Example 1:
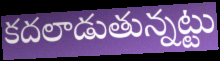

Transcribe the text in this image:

కదలాడుతున్నట్టు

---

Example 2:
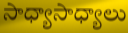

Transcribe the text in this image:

సాధ్యాసాధ్యాలు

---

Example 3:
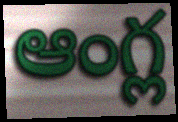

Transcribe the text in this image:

ఆంగ్ల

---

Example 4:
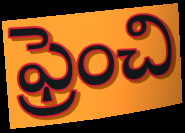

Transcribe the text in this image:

ఫ్రెంచి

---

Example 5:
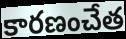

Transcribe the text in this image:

కారణంచేత